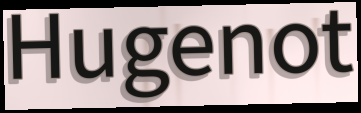
Hugenot